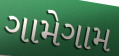
ગામેગામ